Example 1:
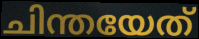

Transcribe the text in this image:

ചിന്തയേത്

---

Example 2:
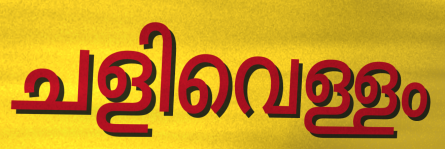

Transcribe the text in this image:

ചളിവെള്ളം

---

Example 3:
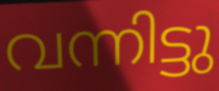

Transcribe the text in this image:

വന്നിട്ടു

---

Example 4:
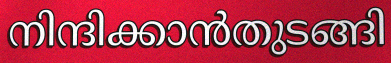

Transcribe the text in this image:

നിന്ദിക്കാൻതുടങ്ങി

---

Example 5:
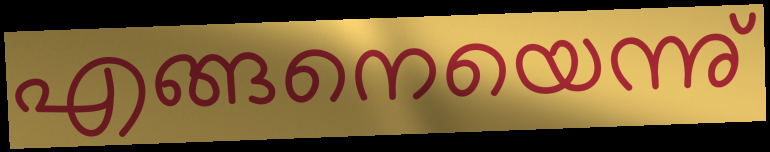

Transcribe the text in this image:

എങ്ങനെയെന്നു്